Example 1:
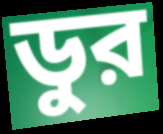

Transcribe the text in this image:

ডুর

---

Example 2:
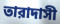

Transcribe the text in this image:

তারাদাসী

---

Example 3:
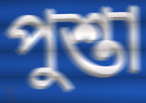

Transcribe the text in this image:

পুশ্তা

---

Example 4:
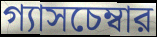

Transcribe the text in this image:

গ্যাসচেম্বার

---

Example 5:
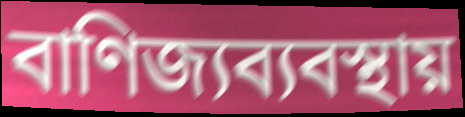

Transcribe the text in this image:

বাণিজ্যব্যবস্থায়